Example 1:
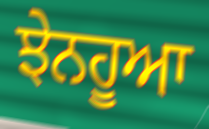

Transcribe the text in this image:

ਝੇਨਹੂਆ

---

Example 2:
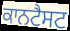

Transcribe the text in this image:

ਕਾਨਟੈਸਟ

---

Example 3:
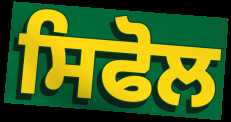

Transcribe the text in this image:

ਸਿਫੋਲ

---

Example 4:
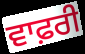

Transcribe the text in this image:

ਵਾਫ਼ਰੀ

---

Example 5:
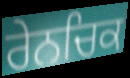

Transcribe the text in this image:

ਰੇਨਚਿਕ